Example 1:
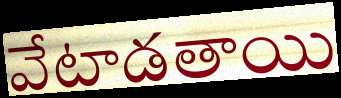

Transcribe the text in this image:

వేటాడతాయి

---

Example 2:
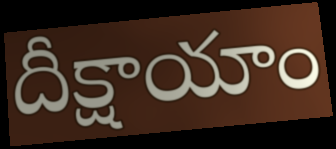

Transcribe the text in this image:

దీక్షాయాం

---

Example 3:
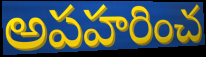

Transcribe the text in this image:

అపహరించ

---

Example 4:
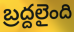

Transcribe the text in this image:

బ్రద్దలైంది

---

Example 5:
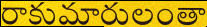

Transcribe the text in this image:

రాకుమారులంతా